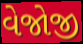
વેજોજી